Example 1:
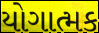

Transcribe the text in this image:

યોગાત્મક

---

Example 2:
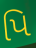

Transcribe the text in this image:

પિ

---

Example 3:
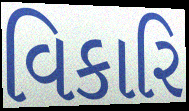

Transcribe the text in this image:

વિકારિ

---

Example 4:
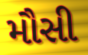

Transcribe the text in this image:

મૌસી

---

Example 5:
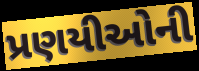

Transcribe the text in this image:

પ્રણયીઓની